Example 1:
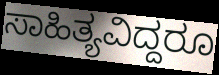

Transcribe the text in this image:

ಸಾಹಿತ್ಯವಿದ್ದರೂ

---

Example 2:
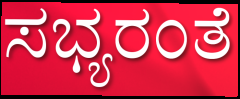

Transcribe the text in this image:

ಸಭ್ಯರಂತೆ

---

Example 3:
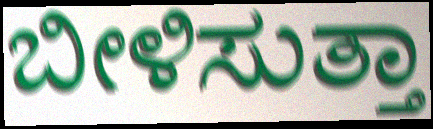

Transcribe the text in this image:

ಬೀಳಿಸುತ್ತಾ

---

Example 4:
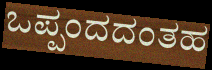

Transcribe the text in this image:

ಒಪ್ಪಂದದಂತಹ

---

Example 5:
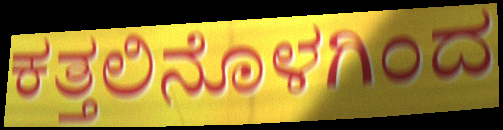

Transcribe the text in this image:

ಕತ್ತಲಿನೊಳಗಿಂದ